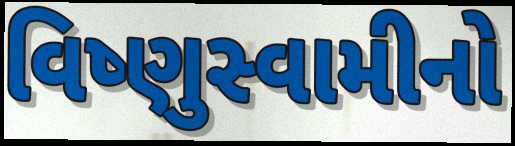
વિષ્ણુસ્વામીનો